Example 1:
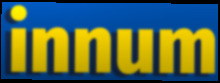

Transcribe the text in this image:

innum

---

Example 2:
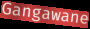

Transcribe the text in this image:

Gangawane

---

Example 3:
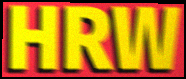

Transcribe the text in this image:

HRW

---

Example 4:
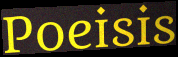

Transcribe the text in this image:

Poeisis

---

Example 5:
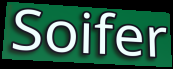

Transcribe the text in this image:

Soifer